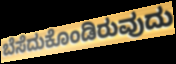
ಬೆಸೆದುಕೊಂಡಿರುವುದು